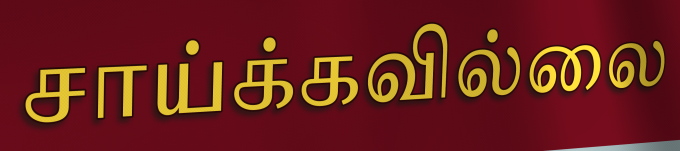
சாய்க்கவில்லை